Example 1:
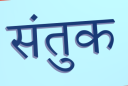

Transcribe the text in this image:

संतुक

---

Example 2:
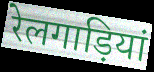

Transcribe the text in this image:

रेलगाड़ियां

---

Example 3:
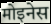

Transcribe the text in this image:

मोइनेस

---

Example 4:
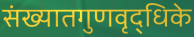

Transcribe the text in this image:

संख्यातगुणवृद्धिके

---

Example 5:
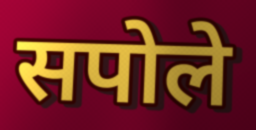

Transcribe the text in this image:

सपोले